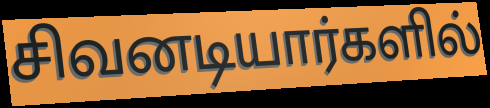
சிவனடியார்களில்